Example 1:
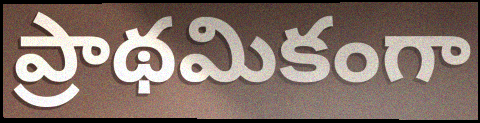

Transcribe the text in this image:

ప్రాథమికంగా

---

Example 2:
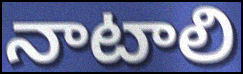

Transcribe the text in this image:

నాటాలి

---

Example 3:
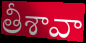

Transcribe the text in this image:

తీశావా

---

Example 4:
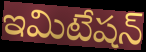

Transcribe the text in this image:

ఇమిటేషన్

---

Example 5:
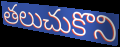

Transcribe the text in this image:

తలుచుకొని